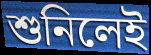
শুনিলেই